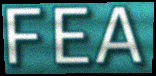
FEA